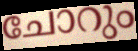
ചോറും